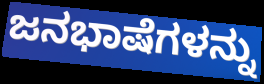
ಜನಭಾಷೆಗಳನ್ನು